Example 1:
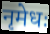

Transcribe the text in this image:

नृमेधः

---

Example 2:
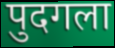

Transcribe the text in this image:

पुदगला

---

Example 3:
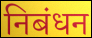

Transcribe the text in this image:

निबंधन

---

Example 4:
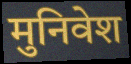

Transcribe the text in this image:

मुनिवेश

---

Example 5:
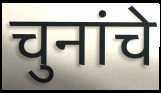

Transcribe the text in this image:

चुनांचे